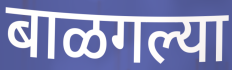
बाळगल्या